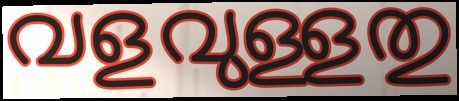
വളവുള്ളതു